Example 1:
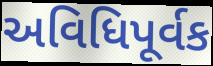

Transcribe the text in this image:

અવિધિપૂર્વક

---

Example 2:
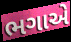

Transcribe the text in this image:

ભગાએ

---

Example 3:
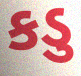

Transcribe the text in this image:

કડુ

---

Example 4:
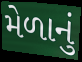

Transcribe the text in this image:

મેળાનું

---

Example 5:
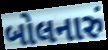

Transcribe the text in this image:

બોલનારું